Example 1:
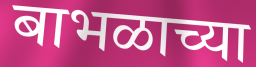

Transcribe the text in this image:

बाभळाच्या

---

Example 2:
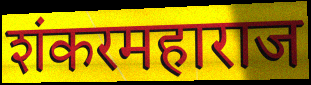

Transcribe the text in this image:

शंकरमहाराज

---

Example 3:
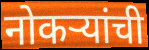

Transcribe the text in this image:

नोकऱ्यांची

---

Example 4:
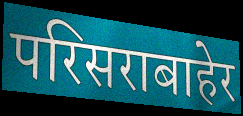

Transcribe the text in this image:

परिसराबाहेर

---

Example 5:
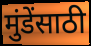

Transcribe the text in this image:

मुंडेंसाठी